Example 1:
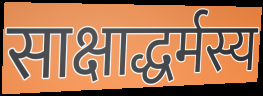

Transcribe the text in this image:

साक्षाद्धर्मस्य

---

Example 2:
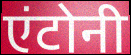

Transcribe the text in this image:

एंटोनी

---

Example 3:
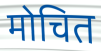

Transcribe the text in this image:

मोचित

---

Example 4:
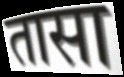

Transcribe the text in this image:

तासा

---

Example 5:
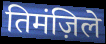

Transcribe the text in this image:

तिमंज़िले